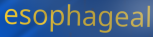
esophageal